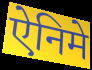
ऐनिमे